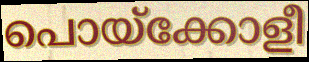
പൊയ്ക്കോളീ